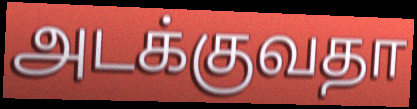
அடக்குவதா